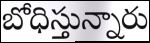
బోధిస్తున్నారు